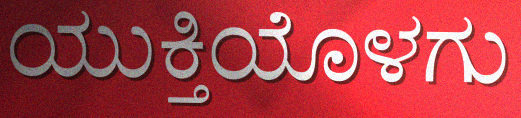
ಯುಕ್ತಿಯೊಳಗು